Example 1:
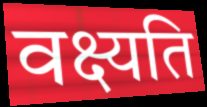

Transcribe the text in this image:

वक्ष्यति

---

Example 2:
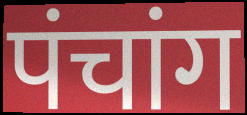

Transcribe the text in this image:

पंचांग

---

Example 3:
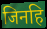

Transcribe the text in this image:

जिनहि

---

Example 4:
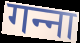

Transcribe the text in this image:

गन्‍ना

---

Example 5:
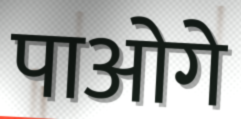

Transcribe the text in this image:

पाओगे